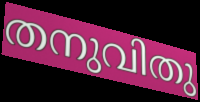
തനുവിതു